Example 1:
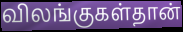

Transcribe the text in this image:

விலங்குகள்தான்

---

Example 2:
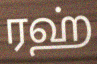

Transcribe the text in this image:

ரஹ்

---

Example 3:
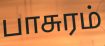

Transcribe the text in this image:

பாசுரம்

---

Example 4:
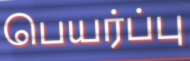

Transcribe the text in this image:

பெயர்ப்பு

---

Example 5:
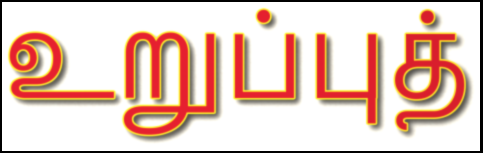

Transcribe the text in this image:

உறுப்புத்